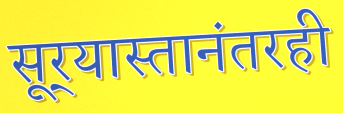
सूर्यास्तानंतरही